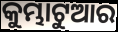
କୁମ୍ଭାଟୁଆର